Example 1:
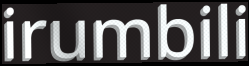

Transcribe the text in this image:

irumbili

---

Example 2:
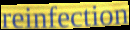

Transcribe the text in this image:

reinfection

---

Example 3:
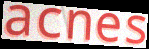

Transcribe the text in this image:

acnes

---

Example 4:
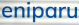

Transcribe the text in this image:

eniparu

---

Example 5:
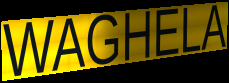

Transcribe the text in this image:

WAGHELA